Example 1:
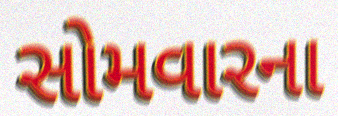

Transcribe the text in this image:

સોમવારના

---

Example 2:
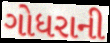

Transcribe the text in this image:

ગોધરાની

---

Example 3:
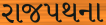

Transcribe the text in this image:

રાજપથના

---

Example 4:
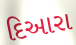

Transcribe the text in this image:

દિઆરા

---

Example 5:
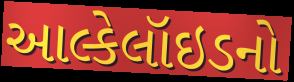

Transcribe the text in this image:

આલ્કેલૉઇડનો